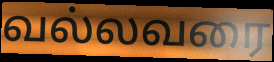
வல்லவரை